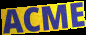
ACME